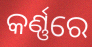
କର୍ଣ୍ଣରେ